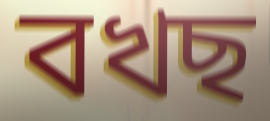
বখছ